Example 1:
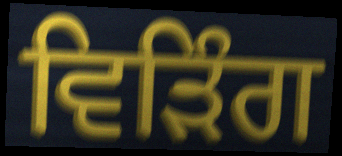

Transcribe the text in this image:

ਵਿੜਿੰਗ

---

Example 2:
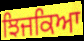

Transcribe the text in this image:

ਝਿਜਕਿਆ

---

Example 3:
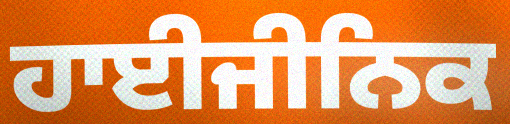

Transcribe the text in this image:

ਹਾਈਜੀਨਿਕ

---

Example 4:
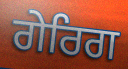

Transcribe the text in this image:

ਗੇਰਿਗ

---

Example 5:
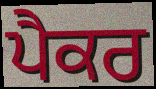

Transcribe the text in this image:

ਪੈਕਰ